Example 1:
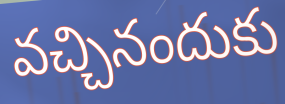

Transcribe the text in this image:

వచ్చినందుకు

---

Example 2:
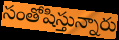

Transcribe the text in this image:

సంతోషిస్తున్నారు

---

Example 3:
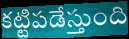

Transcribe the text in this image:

కట్టిపడేస్తుంది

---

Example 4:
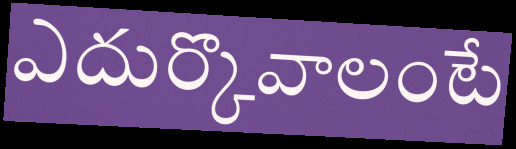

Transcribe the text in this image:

ఎదుర్కొవాలంటే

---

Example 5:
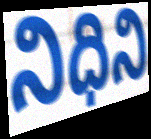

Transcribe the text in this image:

నిధిని